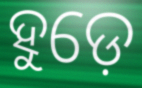
ହୁଡ଼େ